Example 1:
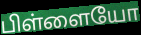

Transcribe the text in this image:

பிள்ளையோ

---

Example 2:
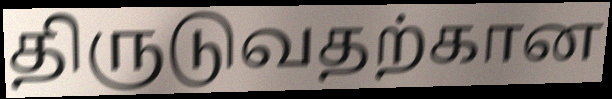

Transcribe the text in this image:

திருடுவதற்கான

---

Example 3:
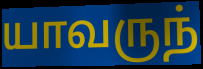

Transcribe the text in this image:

யாவருந்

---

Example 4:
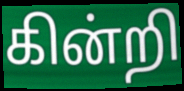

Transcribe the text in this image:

கின்றி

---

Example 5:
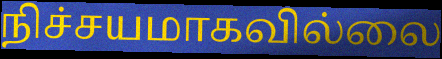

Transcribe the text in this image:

நிச்சயமாகவில்லை